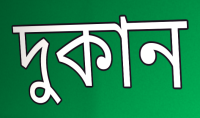
দুকান